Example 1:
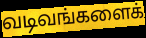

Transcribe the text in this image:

வடிவங்களைக்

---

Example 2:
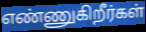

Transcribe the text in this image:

எண்ணுகிறீர்கள்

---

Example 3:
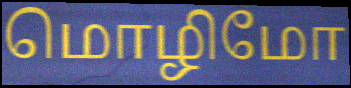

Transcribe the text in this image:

மொழிமோ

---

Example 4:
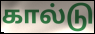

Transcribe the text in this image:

கால்டு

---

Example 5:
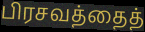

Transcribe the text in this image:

பிரசவத்தைத்